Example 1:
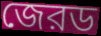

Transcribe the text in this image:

জেরড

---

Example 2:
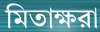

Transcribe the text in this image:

মিতাক্ষরা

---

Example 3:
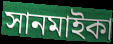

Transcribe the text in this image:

সানমাইকা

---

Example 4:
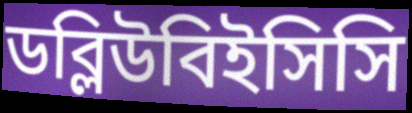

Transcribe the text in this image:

ডব্লিউবিইসিসি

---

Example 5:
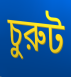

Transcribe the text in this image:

চুরুট